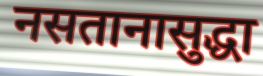
नसतानासुद्धा